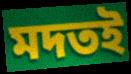
মদতই